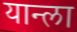
यान्ला